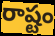
రాష్టం